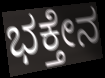
ಭಕ್ತೇನ